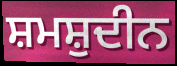
ਸ਼ਮਸ਼ੁਦੀਨ